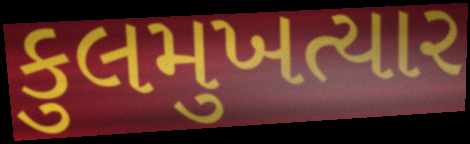
કુલમુખત્યાર